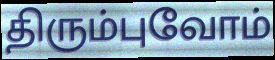
திரும்புவோம்